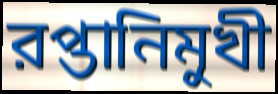
রপ্তানিমুখী